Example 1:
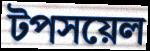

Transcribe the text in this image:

টপসয়েল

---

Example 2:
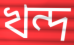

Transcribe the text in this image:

খন্দ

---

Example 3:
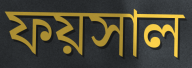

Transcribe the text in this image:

ফয়সাল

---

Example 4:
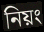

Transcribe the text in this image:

নিয়ং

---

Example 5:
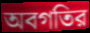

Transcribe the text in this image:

অবগতির